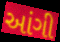
આંગી